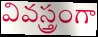
వివస్త్రంగా